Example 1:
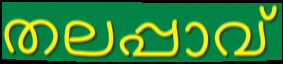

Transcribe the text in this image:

തലപ്പാവ്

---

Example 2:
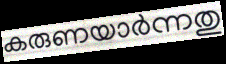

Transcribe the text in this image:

കരുണയാർന്നതു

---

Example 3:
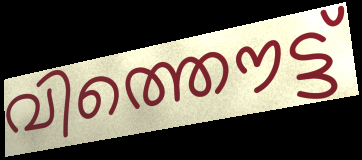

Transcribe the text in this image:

വിത്തൌട്ട്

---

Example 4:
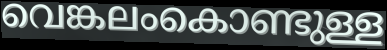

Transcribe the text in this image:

വെങ്കലംകൊണ്ടുള്ള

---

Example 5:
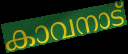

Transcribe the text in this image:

കാവനാട്